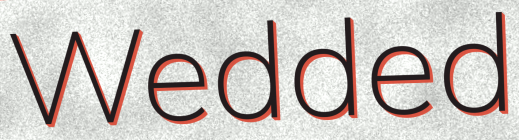
Wedded